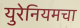
युरेनियमचा